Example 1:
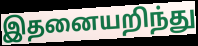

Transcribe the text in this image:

இதனையறிந்து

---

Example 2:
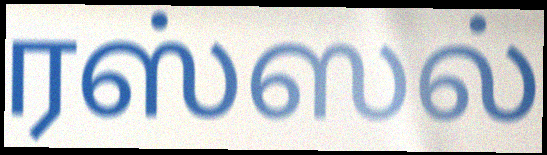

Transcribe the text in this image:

ரஸ்ஸல்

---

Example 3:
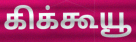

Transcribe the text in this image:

கிக்கூயூ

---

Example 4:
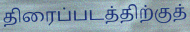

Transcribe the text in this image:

திரைப்படத்திற்குத்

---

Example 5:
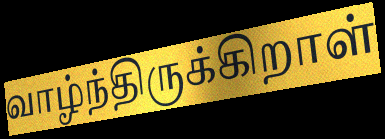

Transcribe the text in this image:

வாழ்ந்திருக்கிறாள்